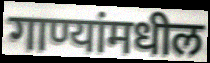
गाण्यांमधील